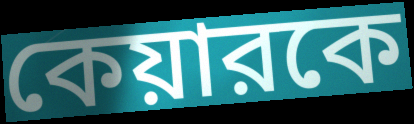
কেয়ারকে